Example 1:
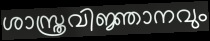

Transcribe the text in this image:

ശാസ്ത്രവിജ്ഞാനവും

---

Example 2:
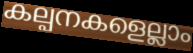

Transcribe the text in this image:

കല്പനകളെല്ലാം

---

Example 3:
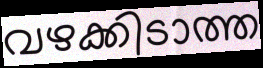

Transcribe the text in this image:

വഴക്കിടാത്ത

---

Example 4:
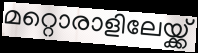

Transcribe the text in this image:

മറ്റൊരാളിലേയ്ക്ക്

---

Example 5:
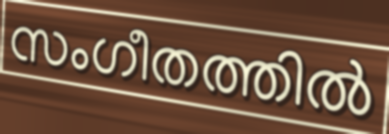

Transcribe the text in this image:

സംഗീതത്തിൽ